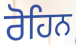
ਰੋਹਿਨ